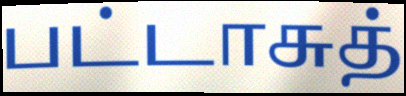
பட்டாசுத்